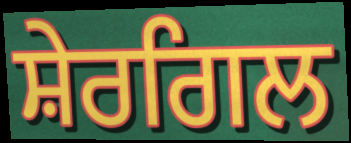
ਸ਼ੇਰਗਿਲ